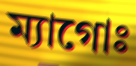
ম্যাগোঃ